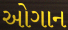
ઓગાન